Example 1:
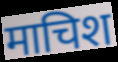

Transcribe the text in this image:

माचिश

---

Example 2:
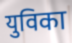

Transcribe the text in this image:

युविका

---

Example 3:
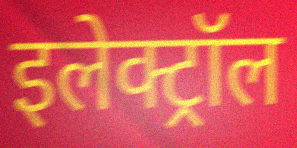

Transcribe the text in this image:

इलेक्ट्रॉल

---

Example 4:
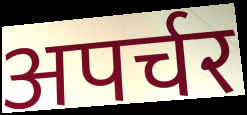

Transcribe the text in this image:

अपर्चर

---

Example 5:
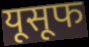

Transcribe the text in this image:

यूसूफ